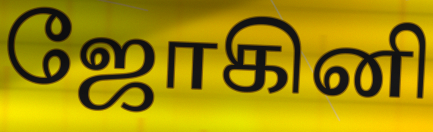
ஜோகினி